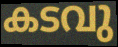
കടവു